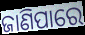
ଜାଣିପାରେ